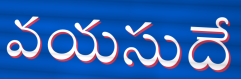
వయసుదే